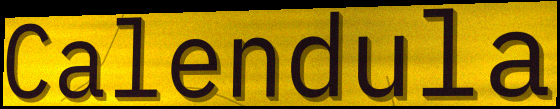
Calendula